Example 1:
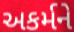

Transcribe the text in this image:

અકર્મને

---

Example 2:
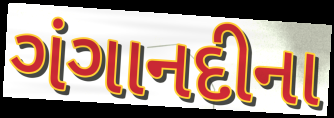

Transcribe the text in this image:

ગંગાનદીના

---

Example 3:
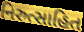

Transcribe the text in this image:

નિરુત્સાહિત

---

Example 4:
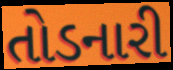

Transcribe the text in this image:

તોડનારી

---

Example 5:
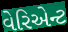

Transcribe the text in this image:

વેરિએન્ટ